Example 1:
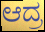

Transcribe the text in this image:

ಆದ್ರ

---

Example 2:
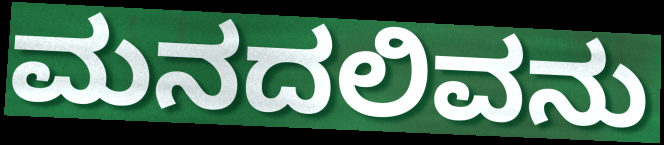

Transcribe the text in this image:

ಮನದಲಿವನು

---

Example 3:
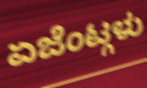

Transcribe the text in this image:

ಏಜೆಂಟ್ಗಳು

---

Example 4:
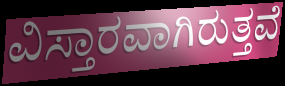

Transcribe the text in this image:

ವಿಸ್ತಾರವಾಗಿರುತ್ತವೆ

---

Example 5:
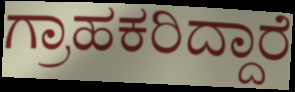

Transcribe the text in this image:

ಗ್ರಾಹಕರಿದ್ದಾರೆ